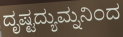
ದೃಷ್ಟದ್ಯುಮ್ನನಿಂದ